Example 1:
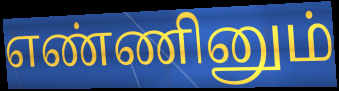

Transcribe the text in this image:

எண்ணினும்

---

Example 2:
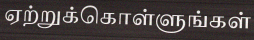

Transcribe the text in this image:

ஏற்றுக்கொள்ளுங்கள்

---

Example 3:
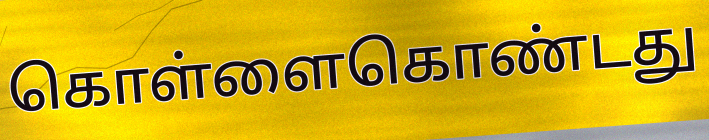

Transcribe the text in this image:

கொள்ளைகொண்டது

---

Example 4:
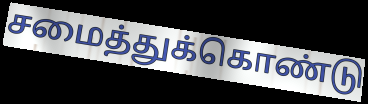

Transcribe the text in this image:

சமைத்துக்கொண்டு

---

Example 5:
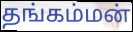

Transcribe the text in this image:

தங்கம்மன்